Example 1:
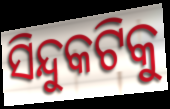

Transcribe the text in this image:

ସିନ୍ଦୁକଟିକୁ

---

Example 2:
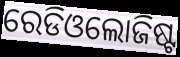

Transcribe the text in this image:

ରେଡିଓଲୋଜିଷ୍ଟ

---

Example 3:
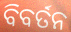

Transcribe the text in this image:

ବିବର୍ତନ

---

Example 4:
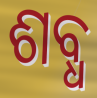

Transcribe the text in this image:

ଶବ୍ଧ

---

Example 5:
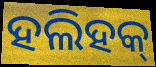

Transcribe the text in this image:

ହଲିହକ୍